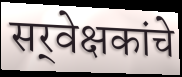
सर्वेक्षकांचे